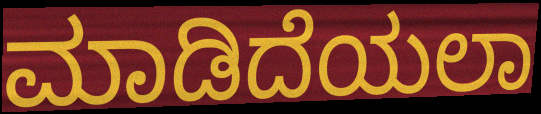
ಮಾಡಿದೆಯಲಾ